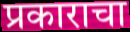
प्रकाराचा